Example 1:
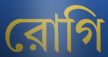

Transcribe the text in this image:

রোগি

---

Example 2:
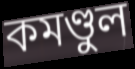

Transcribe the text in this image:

কমণ্ডুল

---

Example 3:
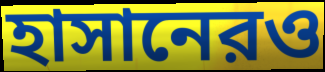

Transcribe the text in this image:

হাসানেরও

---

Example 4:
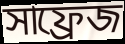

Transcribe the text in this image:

সাফ্রেজ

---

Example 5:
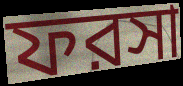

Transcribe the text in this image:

ফরসা